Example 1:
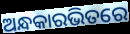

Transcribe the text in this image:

ଅନ୍ଧକାରଭିତରେ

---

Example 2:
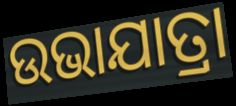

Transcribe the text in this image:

ଉଭାଯାତ୍ରା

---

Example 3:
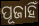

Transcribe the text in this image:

ପୂଜାହିଁ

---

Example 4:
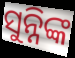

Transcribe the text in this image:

ସୁନ୍ନିଙ୍କ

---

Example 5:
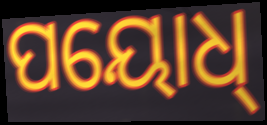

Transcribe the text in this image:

ପୟୋଧ୍